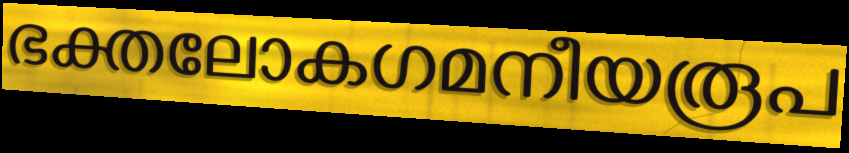
ഭക്തലോകഗമനീയരൂപ